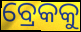
ବ୍ରେକକୁ